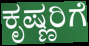
ಕೃಷ್ಣರಿಗೆ